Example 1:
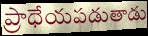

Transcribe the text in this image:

ప్రాధేయపడుతాడు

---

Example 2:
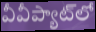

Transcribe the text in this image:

వీవీప్యాట్‌లో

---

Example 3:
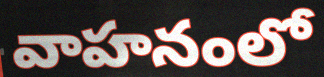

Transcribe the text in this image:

వాహనంలో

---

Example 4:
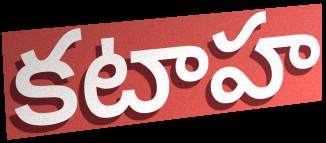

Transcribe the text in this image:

కటాహ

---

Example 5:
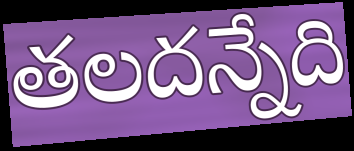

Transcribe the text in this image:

తలదన్నేది